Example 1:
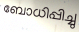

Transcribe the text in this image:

ബോധിപ്പിച്ചു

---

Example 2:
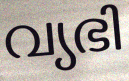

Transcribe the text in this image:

വ്യഭി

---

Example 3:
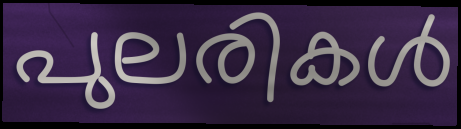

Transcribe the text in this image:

പുലരികൾ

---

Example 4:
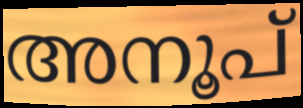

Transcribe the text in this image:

അനൂപ്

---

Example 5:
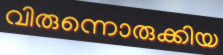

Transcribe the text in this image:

വിരുന്നൊരുക്കിയ